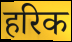
हरिक